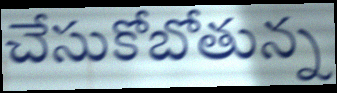
చేసుకోబోతున్న